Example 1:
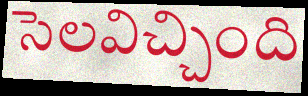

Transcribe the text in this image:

సెలవిచ్చింది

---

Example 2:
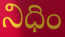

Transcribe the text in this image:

నిధిం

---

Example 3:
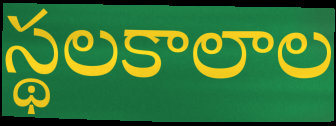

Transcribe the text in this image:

స్థలకాలాల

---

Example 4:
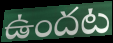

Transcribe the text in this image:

ఉందట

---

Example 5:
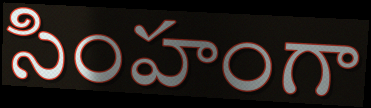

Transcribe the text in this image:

సింహంగా